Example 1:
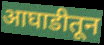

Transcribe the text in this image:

आघाडीतून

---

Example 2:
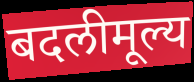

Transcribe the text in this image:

बदलीमूल्य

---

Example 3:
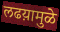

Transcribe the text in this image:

लढय़ामुळे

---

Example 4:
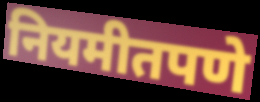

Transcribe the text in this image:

नियमीतपणे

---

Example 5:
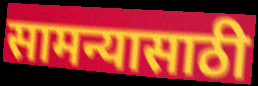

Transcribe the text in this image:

सामन्यासाठी